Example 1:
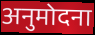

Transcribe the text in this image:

अनुमोदना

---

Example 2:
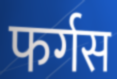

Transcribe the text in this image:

फर्गस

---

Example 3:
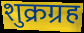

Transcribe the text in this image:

शुक्रग्रह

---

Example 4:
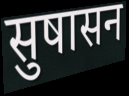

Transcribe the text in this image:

सुषासन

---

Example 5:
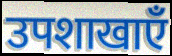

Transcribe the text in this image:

उपशाखाएँ